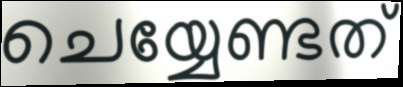
ചെയ്യേണ്ടത്